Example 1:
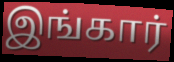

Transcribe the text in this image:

இங்கார்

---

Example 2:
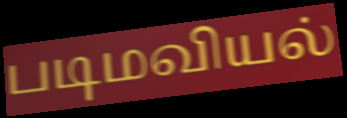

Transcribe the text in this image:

படிமவியல்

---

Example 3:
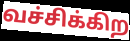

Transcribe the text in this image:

வச்சிக்கிற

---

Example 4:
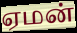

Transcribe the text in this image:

ஏமன்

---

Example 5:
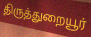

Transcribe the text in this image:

திருத்துறையூர்